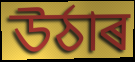
উঠাৰ